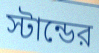
স্টান্ডের